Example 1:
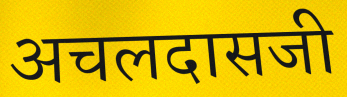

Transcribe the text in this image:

अचलदासजी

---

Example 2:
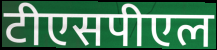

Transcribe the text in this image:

टीएसपीएल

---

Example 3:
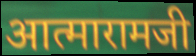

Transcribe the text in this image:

आत्मारामजी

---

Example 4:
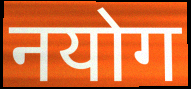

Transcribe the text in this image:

नयोग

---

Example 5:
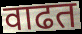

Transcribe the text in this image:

वाढत